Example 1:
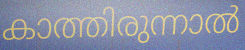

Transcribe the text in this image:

കാത്തിരുന്നാൽ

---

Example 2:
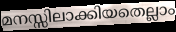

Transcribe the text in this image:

മനസ്സിലാക്കിയതെല്ലാം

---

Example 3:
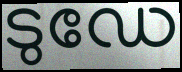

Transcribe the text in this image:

ടുഡേ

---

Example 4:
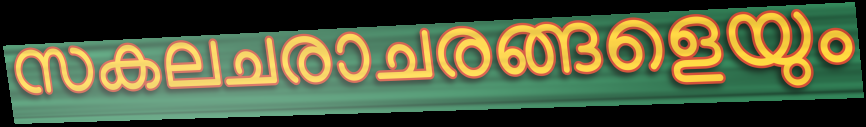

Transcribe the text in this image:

സകലചരാചരങ്ങളെയും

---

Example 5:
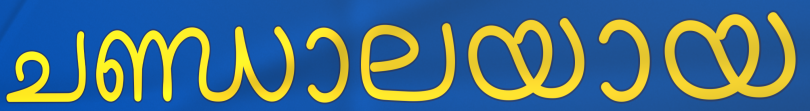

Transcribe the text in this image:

ചണ്ഡാലയായ